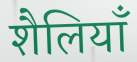
शैलियाँ